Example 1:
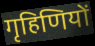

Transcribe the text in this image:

गृहिणियों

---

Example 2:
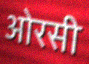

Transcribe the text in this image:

ओरसी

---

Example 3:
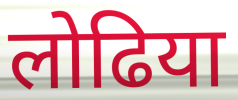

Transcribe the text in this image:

लोढिया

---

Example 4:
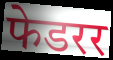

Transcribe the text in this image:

फेडरर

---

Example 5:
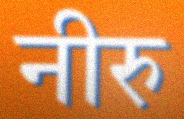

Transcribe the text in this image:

नीरु